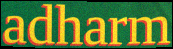
adharm